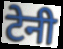
टेनी